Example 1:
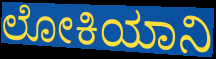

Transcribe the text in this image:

ಲೋಕಿಯಾನಿ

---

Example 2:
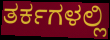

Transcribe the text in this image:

ತರ್ಕಗಳಲ್ಲಿ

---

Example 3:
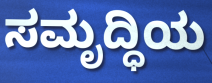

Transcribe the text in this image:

ಸಮೃದ್ಧಿಯ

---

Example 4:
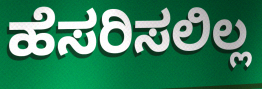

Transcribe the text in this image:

ಹೆಸರಿಸಲಿಲ್ಲ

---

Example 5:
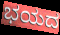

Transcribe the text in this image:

ಭಯದ